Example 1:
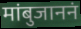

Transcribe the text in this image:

मांबुजाननं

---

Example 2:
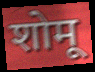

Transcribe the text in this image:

शोमू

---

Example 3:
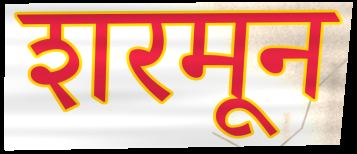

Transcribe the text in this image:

शरमून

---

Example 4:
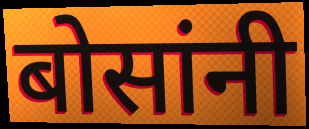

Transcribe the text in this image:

बोसांनी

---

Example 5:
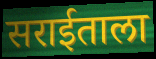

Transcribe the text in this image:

सराईताला